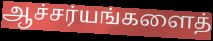
ஆச்சர்யங்களைத்